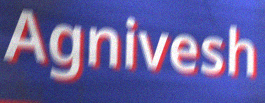
Agnivesh